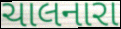
ચાલનારા